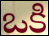
ఒకి